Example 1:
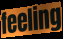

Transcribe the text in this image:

feeling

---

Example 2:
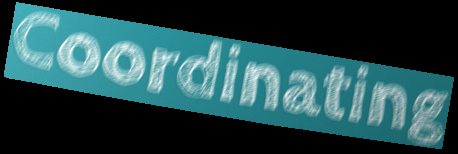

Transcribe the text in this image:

Coordinating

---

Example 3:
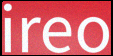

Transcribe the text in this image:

ireo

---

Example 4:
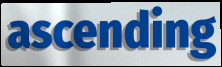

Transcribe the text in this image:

ascending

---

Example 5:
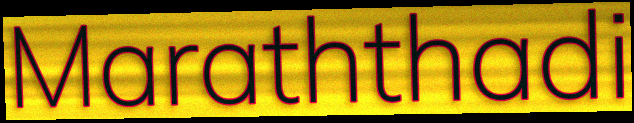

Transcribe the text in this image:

Maraththadi